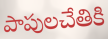
పాపులచేతికి